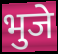
भुजे